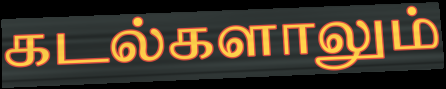
கடல்களாலும்